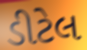
ડીટેલ